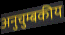
अनुचुम्बकीय